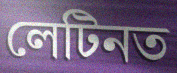
লেটিনত